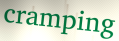
cramping